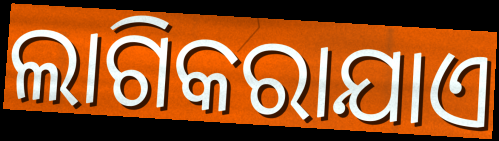
ଲାଗିକରାଯାଏ